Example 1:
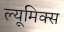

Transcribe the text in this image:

ल्यूमिक्स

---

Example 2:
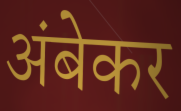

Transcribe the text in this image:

अंबेकर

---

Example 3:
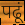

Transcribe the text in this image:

पढूं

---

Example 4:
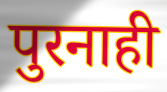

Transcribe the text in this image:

पुरनाही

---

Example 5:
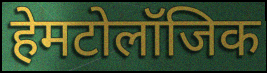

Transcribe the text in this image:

हेमटोलॉजिक